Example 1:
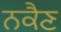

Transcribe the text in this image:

ਨਕੈਣ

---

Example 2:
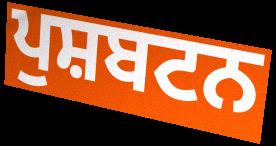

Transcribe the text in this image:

ਪੁਸ਼ਬਟਨ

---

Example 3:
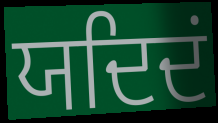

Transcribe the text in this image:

ਯਦਿਦਂ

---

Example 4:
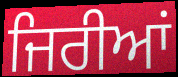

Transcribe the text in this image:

ਜਿਰੀਆਂ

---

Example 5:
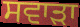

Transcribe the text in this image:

ਸਵਾੜਾ